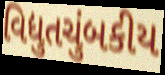
વિદ્યુતચુંબકીય